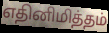
எதினிமித்தம்